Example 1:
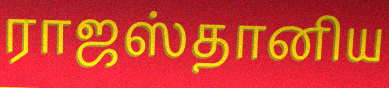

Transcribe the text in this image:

ராஜஸ்தானிய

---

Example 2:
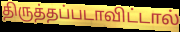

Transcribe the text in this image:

திருத்தப்படாவிட்டால்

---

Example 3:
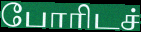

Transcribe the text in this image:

போரிடச்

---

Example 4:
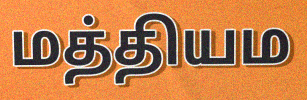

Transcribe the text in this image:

மத்தியம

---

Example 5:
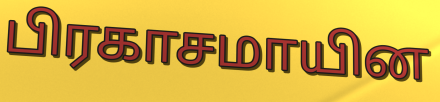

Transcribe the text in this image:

பிரகாசமாயின